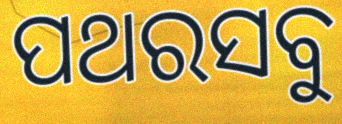
ପଥରସବୁ